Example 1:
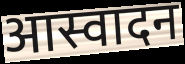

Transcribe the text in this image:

आस्वादन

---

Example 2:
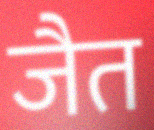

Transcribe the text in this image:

जैत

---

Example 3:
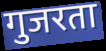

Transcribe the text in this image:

गुजरता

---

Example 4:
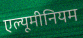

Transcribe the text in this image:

एल्यूमीनियम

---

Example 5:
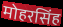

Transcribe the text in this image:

मोहरसिंह